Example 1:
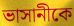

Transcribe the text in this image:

ভাসানীকে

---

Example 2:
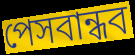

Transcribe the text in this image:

পেসবান্ধব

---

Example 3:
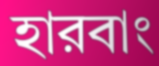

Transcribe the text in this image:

হারবাং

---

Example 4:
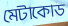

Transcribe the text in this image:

মেটাকোড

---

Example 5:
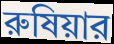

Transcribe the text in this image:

রুষিয়ার